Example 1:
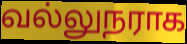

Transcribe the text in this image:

வல்லுநராக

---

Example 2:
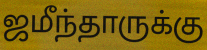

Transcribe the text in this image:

ஜமீந்தாருக்கு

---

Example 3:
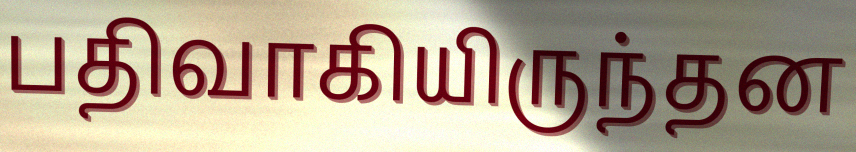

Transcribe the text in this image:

பதிவாகியிருந்தன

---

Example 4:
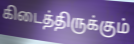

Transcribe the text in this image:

கிடைத்திருக்கும்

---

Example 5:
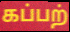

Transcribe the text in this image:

கப்பற்